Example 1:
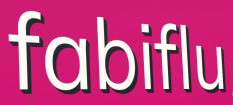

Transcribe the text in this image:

fabiflu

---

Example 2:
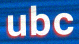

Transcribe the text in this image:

ubc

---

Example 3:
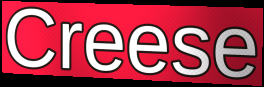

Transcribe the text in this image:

Creese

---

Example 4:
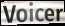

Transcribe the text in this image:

Voicer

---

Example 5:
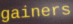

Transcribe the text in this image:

gainers